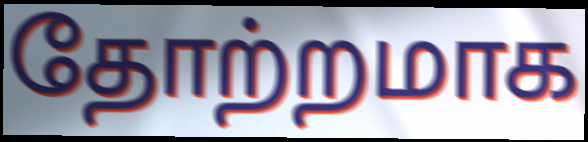
தோற்றமாக